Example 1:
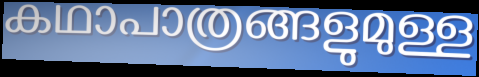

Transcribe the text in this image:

കഥാപാത്രങ്ങളുമുള്ള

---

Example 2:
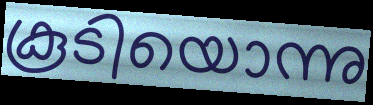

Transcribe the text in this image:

കൂടിയൊന്നു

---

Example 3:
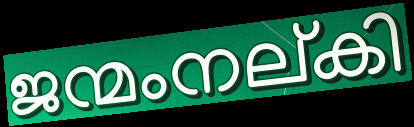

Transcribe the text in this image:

ജന്മംനല്കി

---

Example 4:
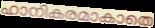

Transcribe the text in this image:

ഹാനികരമാകാതെ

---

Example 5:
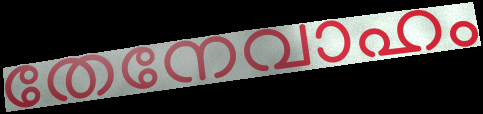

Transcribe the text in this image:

തേനേവാഹം